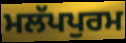
ਮਲੱਪਪੁਰਮ